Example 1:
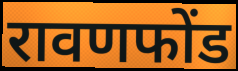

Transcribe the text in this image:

रावणफोंड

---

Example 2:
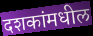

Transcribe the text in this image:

दशकांमधील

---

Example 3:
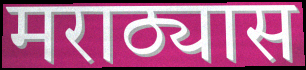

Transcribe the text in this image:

मराठ्यास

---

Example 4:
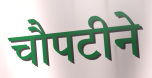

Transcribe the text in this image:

चौपटीने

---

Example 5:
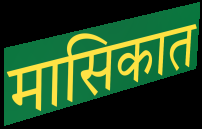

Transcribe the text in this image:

मासिकात